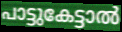
പാട്ടുകേട്ടാൽ